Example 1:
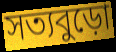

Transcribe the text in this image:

সত্যবুড়ো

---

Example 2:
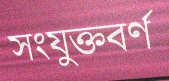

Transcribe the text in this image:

সংযুক্তবর্ণ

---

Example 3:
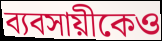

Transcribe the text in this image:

ব্যবসায়ীকেও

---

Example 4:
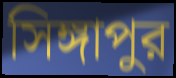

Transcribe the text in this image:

সিঙ্গাপুর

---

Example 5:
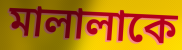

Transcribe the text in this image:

মালালাকে